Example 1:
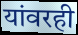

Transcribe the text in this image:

यांवरही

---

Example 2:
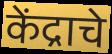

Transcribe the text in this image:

केंद्राचे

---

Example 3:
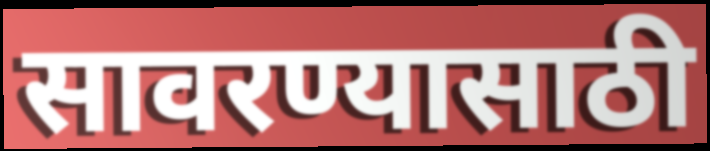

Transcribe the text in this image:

सावरण्यासाठी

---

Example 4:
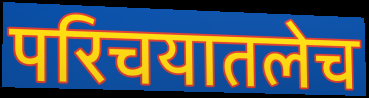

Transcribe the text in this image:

परिचयातलेच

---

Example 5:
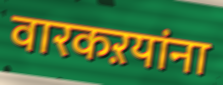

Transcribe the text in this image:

वारकऱयांना